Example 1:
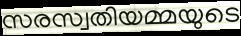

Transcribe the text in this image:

സരസ്വതിയമ്മയുടെ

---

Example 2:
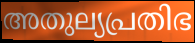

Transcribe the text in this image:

അതുല്യപ്രതിഭ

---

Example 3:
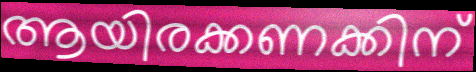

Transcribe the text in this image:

ആയിരക്കണക്കിന്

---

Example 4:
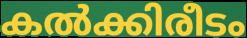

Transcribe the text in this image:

കൽക്കിരീടം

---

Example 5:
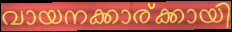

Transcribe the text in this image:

വായനക്കാര്ക്കായി